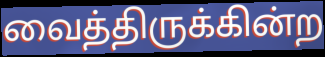
வைத்திருக்கின்ற